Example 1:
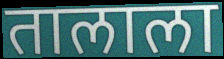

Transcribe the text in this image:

तालाला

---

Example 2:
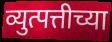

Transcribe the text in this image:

व्युत्पत्तीच्या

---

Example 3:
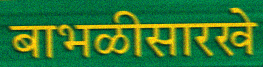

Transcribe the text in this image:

बाभळीसारखे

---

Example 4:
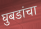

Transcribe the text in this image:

घुबडांचा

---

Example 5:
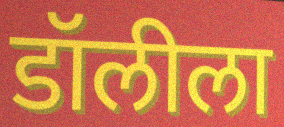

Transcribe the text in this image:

डॉलीला